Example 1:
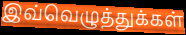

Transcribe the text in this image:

இவ்வெழுத்துக்கள்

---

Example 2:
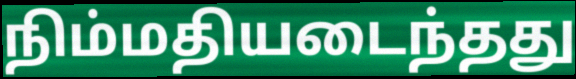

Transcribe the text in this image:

நிம்மதியடைந்தது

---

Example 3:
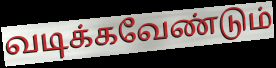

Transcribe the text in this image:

வடிக்கவேண்டும்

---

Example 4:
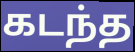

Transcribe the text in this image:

கடந்த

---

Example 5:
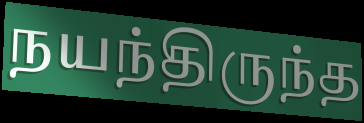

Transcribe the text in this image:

நயந்திருந்த